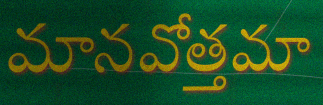
మానవోత్తమా